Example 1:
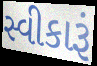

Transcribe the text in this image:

સ્વીકારૂં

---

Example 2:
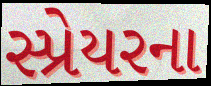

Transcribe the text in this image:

સ્પ્રેયરના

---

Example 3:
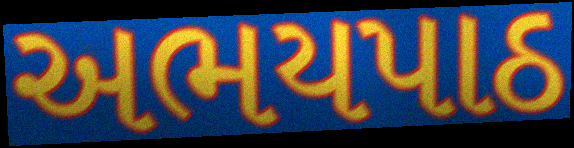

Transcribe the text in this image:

અભયપાઠ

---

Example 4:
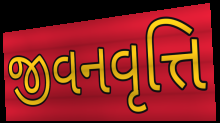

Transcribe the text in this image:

જીવનવૃત્તિ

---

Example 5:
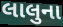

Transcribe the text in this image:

લાલુના